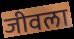
जीवला